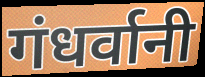
गंधर्वानी